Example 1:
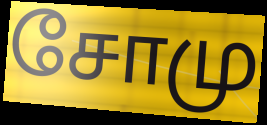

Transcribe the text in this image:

சோமு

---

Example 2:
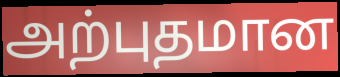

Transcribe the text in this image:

அற்புதமான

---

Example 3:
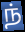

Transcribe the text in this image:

ந்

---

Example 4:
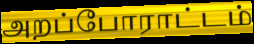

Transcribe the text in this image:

அறப்போராட்டம்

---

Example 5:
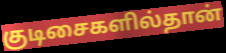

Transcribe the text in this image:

குடிசைகளில்தான்